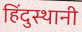
हिंदुस्थानी